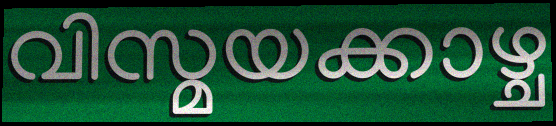
വിസ്മയക്കാഴ്ച